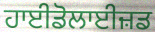
ਹਾਈਡੋਲਾਈਜ਼ਡ